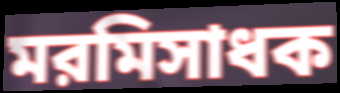
মরমিসাধক